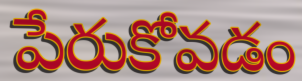
పేరుకోవడం